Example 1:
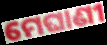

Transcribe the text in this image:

ମେଘାଣୀ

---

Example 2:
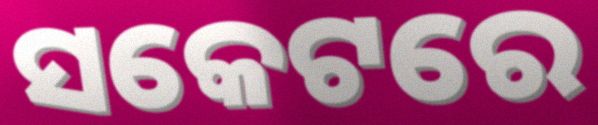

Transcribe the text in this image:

ସକେଟରେ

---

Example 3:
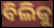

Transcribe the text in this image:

ବିଲିକୁ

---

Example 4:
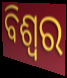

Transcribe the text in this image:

ବିଶ୍ଵର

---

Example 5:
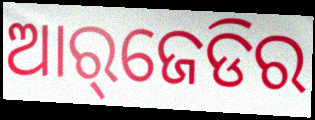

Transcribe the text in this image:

ଆର୍‌ଜେଡିର